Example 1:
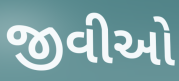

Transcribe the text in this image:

જીવીઓ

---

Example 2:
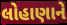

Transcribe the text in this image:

લોહાણાને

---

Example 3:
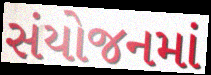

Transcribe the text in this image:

સંયોજનમાં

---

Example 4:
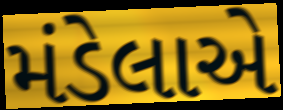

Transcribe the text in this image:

મંડેલાએ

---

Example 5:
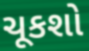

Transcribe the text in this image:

ચૂકશો